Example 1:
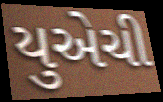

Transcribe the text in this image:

યુએચી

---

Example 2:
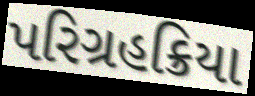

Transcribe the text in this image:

પરિગ્રહક્રિયા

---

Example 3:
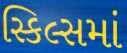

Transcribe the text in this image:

સ્કિલ્સમાં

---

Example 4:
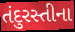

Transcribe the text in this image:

તંદુરસ્તીના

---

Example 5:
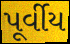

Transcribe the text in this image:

પૂર્વીય